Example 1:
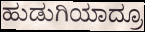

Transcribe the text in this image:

ಹುಡುಗಿಯಾದ್ರೂ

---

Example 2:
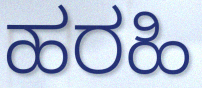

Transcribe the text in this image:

ಹರಹಿ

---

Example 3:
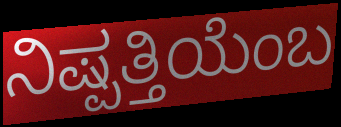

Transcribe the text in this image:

ನಿಷ್ಪತ್ತಿಯೆಂಬ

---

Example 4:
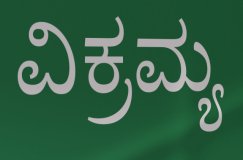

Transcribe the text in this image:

ವಿಕ್ರಮ್ಯ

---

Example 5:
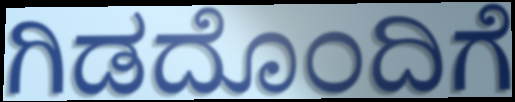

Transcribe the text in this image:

ಗಿಡದೊಂದಿಗೆ